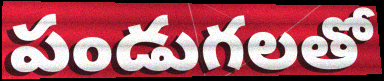
పండుగలతో